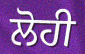
ਲੋਹੀ